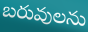
బరువులను